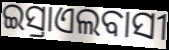
ଇସ୍ରାଏଲବାସୀ